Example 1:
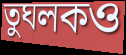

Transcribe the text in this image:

তুঘলকও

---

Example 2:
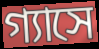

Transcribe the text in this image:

গ্যাসে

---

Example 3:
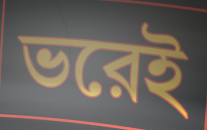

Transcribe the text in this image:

ভরেই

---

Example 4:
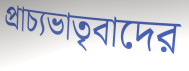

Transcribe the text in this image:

প্রাচ্যভাতৃবাদের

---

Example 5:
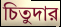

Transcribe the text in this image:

চিতুদার